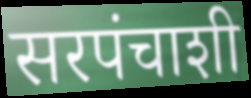
सरपंचाशी